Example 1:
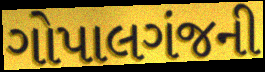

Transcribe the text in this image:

ગોપાલગંજની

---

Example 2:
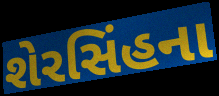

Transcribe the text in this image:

શેરસિંહના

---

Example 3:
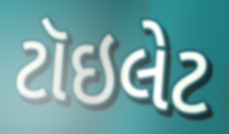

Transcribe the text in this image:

ટૉઇલેટ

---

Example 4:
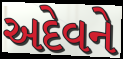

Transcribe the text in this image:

અદેવને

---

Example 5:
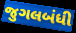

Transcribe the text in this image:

જુગલબંધી